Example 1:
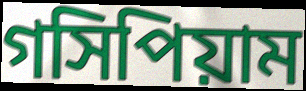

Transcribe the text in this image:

গসিপিয়াম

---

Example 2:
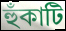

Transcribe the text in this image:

হুঁকাটি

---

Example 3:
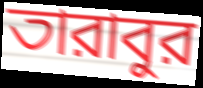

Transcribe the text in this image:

তারাবুর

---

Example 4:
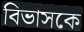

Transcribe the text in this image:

বিভাসকে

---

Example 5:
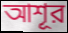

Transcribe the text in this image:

আশূর